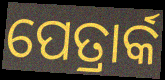
ପେତ୍ରାର୍କ